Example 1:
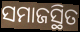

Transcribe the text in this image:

ସମାଜସ୍ଥିତ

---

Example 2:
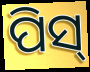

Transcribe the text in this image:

ପିସ୍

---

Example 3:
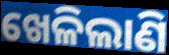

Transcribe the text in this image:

ଖେଳିଲାଣି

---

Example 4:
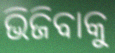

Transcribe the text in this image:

ଭିଜିବାକୁ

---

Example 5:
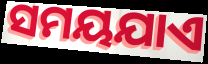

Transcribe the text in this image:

ସମୟଯାଏ